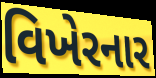
વિખેરનાર